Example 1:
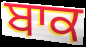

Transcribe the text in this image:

ਬਾਕ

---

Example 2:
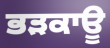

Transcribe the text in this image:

ਭੜਕਾਊ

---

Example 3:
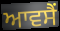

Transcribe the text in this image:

ਆਵਸੈਂ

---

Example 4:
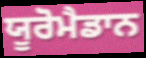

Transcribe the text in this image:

ਯੂਰੋਮੈਡਾਨ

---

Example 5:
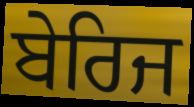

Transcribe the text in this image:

ਬੇਰਿਜ